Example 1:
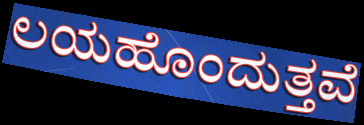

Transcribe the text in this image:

ಲಯಹೊಂದುತ್ತವೆ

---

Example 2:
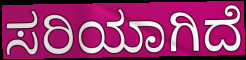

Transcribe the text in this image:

ಸರಿಯಾಗಿದೆ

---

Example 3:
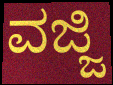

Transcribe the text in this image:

ವಜ್ಜಿ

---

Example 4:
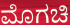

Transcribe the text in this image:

ಮೊಗಚಿ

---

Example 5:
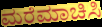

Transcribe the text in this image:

ಮರೆಮಾಚಿಸಿ